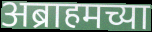
अब्राहमच्या